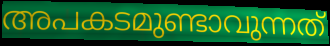
അപകടമുണ്ടാവുന്നത്